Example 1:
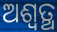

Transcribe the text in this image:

ଅଶ୍ବତ୍ଥ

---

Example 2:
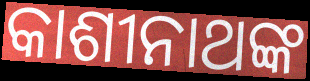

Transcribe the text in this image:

କାଶୀନାଥଙ୍କ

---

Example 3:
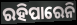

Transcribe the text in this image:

ରହିପାରେନି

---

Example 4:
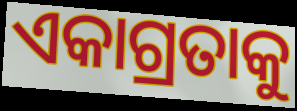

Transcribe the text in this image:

ଏକାଗ୍ରତାକୁ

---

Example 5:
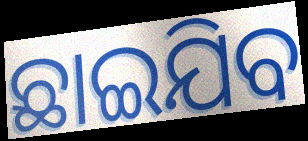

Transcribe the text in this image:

ଛାଇଯିବ